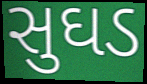
સુઘડ